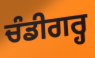
ਚੰਡੀਗਰ੍ਹ